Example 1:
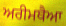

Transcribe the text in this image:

ਅਰੀਮਥੈਆ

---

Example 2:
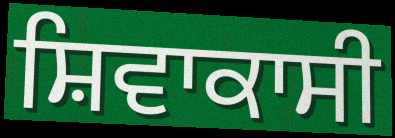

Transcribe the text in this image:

ਸ਼ਿਵਾਕਾਸੀ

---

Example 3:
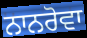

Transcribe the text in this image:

ਨਾਨਰੋਵਾ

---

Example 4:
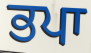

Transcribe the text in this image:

ਭਪਾ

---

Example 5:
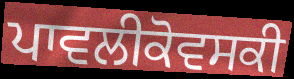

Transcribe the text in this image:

ਪਾਵਲੀਕੋਵਸਕੀ